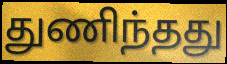
துணிந்தது